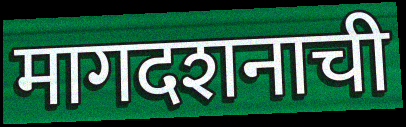
मागदशनाची